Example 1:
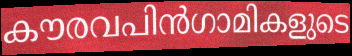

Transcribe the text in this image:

കൗരവപിൻഗാമികളുടെ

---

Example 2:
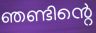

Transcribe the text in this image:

ഞണ്ടിന്റെ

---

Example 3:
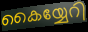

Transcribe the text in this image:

കൈയ്യേറി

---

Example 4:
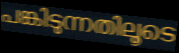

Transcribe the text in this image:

പങ്കിടുന്നതിലൂടെ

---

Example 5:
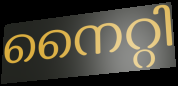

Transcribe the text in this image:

നൈറ്റി